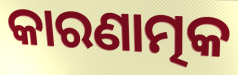
କାରଣାତ୍ମକ